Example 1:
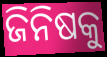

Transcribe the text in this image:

ଜିନିଷକୁ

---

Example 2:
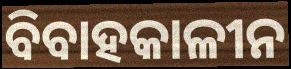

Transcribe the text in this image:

ବିବାହକାଳୀନ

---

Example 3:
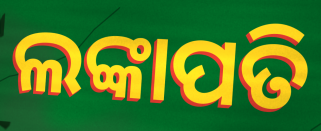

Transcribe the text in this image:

ଲଙ୍କାପତି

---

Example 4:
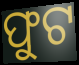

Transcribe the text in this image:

ଫୁଟ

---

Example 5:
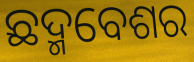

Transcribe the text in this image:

ଛଦ୍ମବେଶର